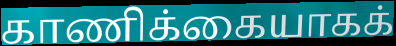
காணிக்கையாகக்